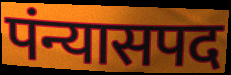
पंन्यासपद